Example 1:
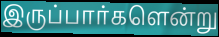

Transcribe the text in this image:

இருப்பார்களென்று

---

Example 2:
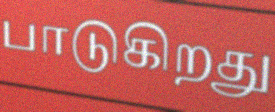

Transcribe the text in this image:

பாடுகிறது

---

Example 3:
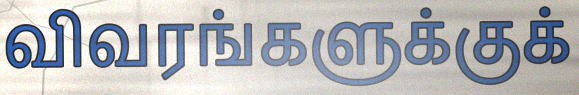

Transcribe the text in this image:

விவரங்களுக்குக்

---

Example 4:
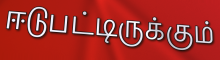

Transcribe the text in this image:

ஈடுபட்டிருக்கும்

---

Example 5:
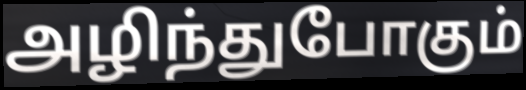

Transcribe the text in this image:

அழிந்துபோகும்